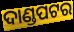
ଦାଣ୍ଡପଟର